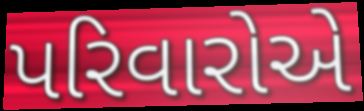
પરિવારોએ